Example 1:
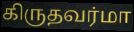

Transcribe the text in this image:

கிருதவர்மா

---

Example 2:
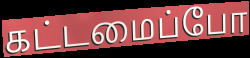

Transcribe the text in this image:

கட்டமைப்போ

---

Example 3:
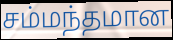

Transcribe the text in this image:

சம்மந்தமான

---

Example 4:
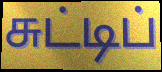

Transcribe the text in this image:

சுட்டிப்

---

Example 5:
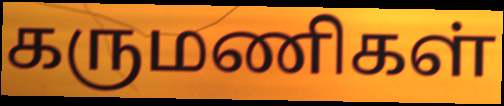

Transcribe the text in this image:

கருமணிகள்